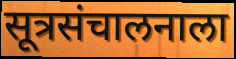
सूत्रसंचालनाला